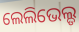
ଲେଲିଭେଲ୍ଡ